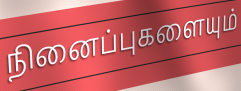
நினைப்புகளையும்